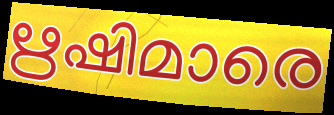
ഋഷിമാരെ